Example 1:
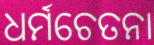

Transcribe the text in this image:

ଧର୍ମଚେତନା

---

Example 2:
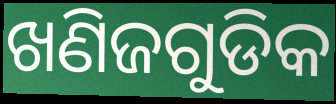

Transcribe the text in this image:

ଖଣିଜଗୁଡିକ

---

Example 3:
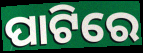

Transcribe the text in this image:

ପାଟିରେ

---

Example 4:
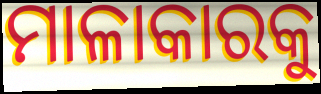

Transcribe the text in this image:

ମାଳାକାରକୁ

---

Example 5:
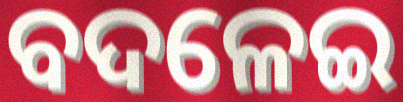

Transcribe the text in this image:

ବଦଳେଇ